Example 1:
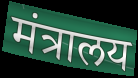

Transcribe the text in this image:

मंत्रालय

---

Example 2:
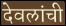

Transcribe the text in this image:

देवलांची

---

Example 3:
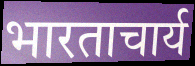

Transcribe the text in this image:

भारताचार्य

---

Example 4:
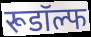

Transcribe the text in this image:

रूडॉल्फ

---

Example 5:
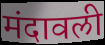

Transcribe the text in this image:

मंदावली